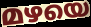
മഴയെ